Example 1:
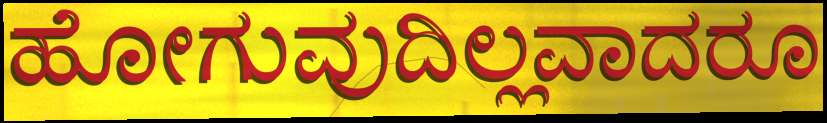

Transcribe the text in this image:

ಹೋಗುವುದಿಲ್ಲವಾದರೂ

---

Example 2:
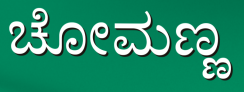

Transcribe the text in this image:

ಚೋಮಣ್ಣ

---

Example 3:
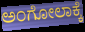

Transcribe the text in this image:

ಅಂಗೋಲಾಕ್ಕೆ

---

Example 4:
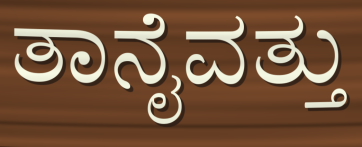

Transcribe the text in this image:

ತಾನೈವತ್ತು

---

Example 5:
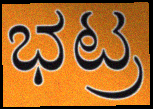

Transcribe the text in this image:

ಭಟ್ರ